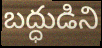
బద్ధుడిని